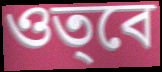
ওত্‌বে